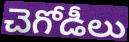
చెగోడీలు